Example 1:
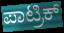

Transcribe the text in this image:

ಪಾಟ್ರಿಕ್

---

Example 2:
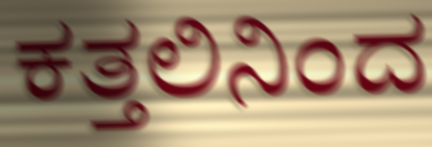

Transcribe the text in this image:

ಕತ್ತಲಿನಿಂದ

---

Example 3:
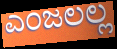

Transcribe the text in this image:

ಎಂಜಲಲ್ಲ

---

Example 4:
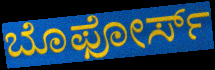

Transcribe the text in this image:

ಬೊಫೋರ್ಸ್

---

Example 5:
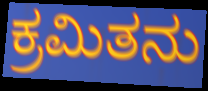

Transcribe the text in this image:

ಕ್ರಮಿತನು